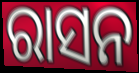
ରାସନ